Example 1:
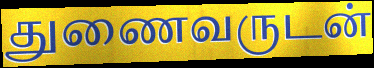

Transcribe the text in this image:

துணைவருடன்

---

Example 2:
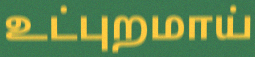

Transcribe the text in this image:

உட்புறமாய்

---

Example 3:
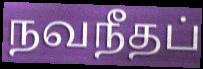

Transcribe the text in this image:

நவநீதப்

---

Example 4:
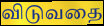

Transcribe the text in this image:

விடுவதை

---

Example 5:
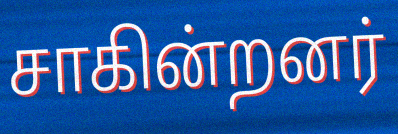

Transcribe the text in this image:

சாகின்றனர்